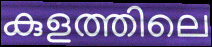
കുളത്തിലെ